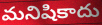
మనిషికాదు